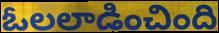
ఓలలాడించింది